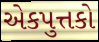
એકપુત્તકો